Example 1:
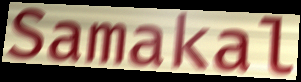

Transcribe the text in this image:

Samakal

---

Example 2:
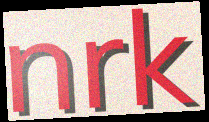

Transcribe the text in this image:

nrk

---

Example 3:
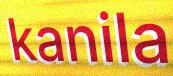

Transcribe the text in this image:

kanila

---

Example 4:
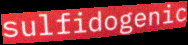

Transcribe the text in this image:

sulfidogenic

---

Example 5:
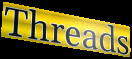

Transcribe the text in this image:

Threads